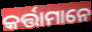
କର୍ତ୍ତାମାନେ